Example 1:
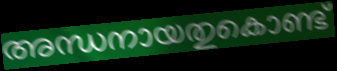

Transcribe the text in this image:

അന്ധനായതുകൊണ്ട്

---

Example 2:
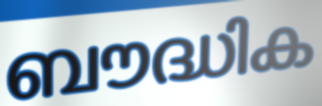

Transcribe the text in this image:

ബൗദ്ധിക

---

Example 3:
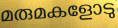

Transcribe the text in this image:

മരുമകളോടു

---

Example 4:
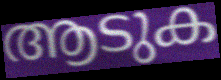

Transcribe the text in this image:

ആടുക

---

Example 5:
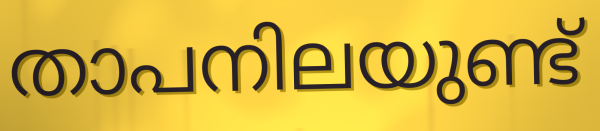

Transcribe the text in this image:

താപനിലയുണ്ട്